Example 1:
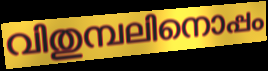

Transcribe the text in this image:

വിതുമ്പലിനൊപ്പം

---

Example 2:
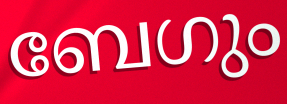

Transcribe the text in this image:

ബേഗും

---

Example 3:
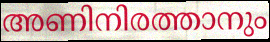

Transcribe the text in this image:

അണിനിരത്താനും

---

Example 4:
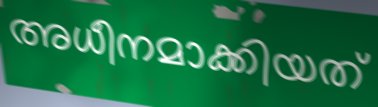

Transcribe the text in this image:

അധീനമാക്കിയത്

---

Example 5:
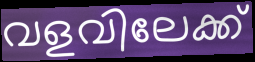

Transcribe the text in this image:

വളവിലേക്ക്